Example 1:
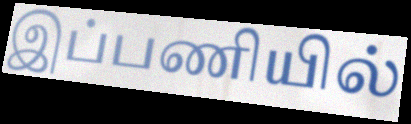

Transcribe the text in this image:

இப்பணியில்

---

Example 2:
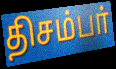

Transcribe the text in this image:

திசம்பர்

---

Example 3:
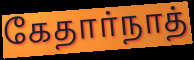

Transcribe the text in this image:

கேதார்நாத்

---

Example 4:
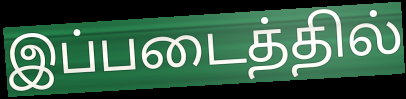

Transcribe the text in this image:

இப்படைத்தில்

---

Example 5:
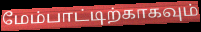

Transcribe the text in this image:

மேம்பாட்டிற்காகவும்